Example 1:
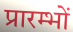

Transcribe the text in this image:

प्रारम्भों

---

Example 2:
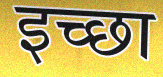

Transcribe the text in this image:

इच्‍छा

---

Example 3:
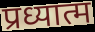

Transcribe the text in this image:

प्रध्यात्म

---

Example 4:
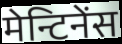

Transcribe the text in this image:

मेन्टिनेंस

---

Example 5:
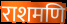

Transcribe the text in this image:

राशमणि